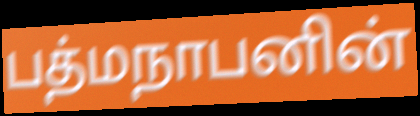
பத்மநாபனின்